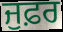
ਜੁਫ਼ਰ